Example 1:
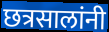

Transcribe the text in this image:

छत्रसालांनी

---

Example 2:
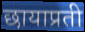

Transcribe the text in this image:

छायाप्रती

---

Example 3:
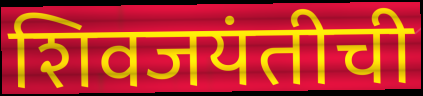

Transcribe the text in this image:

शिवजयंतीची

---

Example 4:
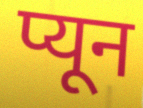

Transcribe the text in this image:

प्यून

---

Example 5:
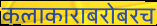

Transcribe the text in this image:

कलाकाराबरोबरच